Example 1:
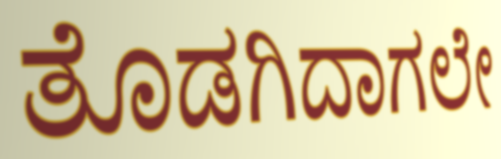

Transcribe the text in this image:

ತೊಡಗಿದಾಗಲೇ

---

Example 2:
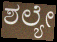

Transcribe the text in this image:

ಶಲ್ಯೇ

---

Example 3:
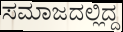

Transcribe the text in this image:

ಸಮಾಜದಲ್ಲಿದ್ದ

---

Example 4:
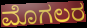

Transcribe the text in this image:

ಮೊಗಲರ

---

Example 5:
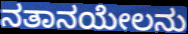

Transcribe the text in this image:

ನತಾನಯೇಲನು